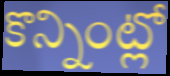
కొన్నింట్లో